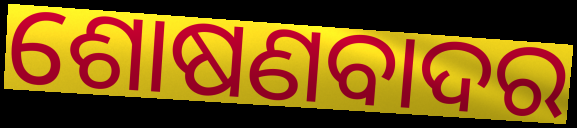
ଶୋଷଣବାଦର